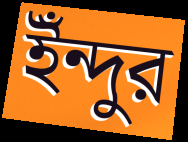
ইঁন্দুর